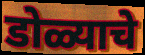
डोळ्याचे